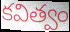
కవిత్వం